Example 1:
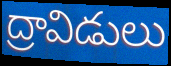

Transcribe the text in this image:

ద్రావిడులు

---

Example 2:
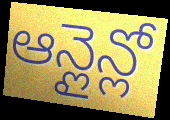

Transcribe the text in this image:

ఆన్లైన్లో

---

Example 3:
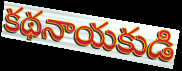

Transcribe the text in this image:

కథనాయకుడి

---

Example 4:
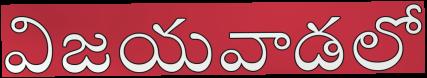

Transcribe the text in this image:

విజయవాడలో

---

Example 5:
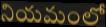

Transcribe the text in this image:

నియమంలో